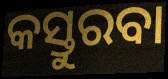
କସ୍ତୁରବା